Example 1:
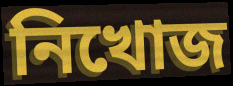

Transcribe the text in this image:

নিখোজ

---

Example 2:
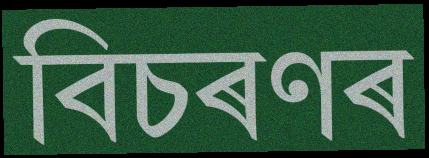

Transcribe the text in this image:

বিচৰণৰ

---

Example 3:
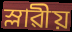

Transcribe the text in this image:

স্লাৱীয়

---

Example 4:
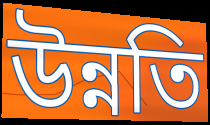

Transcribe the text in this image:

উন্নতি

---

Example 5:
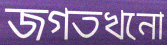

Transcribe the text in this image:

জগতখনো